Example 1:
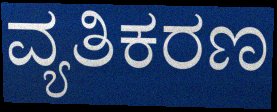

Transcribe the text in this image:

ವ್ಯತಿಕರಣ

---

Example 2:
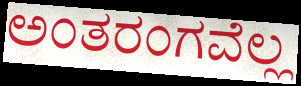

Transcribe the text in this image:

ಅಂತರಂಗವೆಲ್ಲ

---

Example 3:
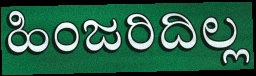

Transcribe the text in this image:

ಹಿಂಜರಿದಿಲ್ಲ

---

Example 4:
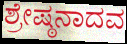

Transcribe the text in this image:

ಶ್ರೇಷ್ಠನಾದವ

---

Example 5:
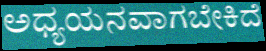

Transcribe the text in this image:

ಅಧ್ಯಯನವಾಗಬೇಕಿದೆ